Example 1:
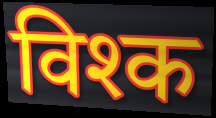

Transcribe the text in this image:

विश्क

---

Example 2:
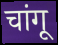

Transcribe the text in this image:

चांगू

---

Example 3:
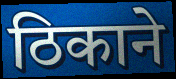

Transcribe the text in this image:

ठिकाने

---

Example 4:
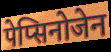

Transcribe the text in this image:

पेप्सिनोजेन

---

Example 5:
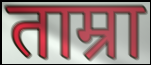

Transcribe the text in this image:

ताम्रा